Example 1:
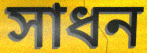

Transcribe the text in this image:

সাধন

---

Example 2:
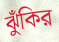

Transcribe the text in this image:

ঝুঁকির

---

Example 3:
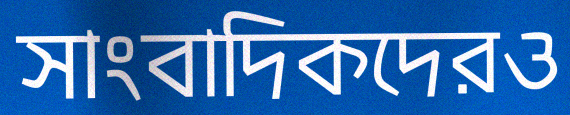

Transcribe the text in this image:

সাংবাদিকদেরও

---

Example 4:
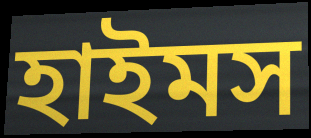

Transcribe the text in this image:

হাইমস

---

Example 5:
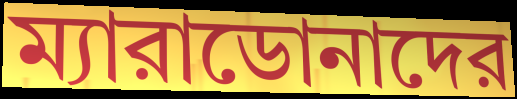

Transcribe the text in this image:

ম্যারাডোনাদের